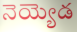
నెయ్యెడ